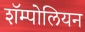
शॅम्पोलियन